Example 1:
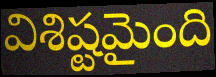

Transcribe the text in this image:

విశిష్టమైంది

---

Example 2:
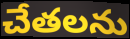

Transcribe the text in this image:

చేతలను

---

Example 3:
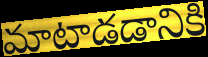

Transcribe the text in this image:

మాటాడడానికి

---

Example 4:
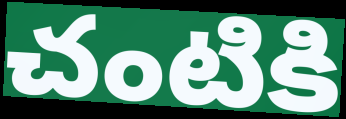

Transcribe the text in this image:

చంటికి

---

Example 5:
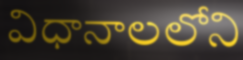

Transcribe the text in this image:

విధానాలలోని